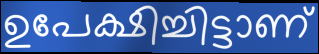
ഉപേക്ഷിച്ചിട്ടാണ്